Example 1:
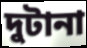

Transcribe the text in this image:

দুটানা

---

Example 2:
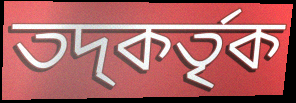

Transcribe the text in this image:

তদ্‌কর্তৃক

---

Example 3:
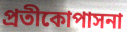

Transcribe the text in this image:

প্রতীকোপাসনা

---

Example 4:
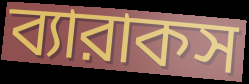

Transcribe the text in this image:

ব্যারাকস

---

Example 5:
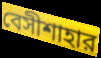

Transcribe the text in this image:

বেসীশাহার